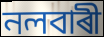
নলবাৰী